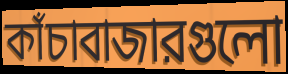
কাঁচাবাজারগুলো